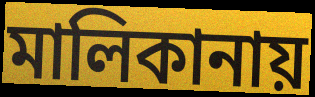
মালিকানায়